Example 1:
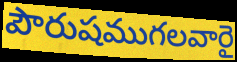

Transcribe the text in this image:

పౌరుషముగలవారై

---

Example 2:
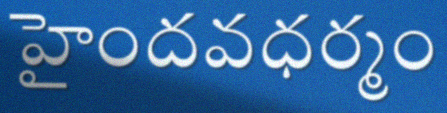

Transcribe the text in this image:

హైందవధర్మం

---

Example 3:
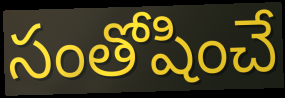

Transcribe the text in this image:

సంతోషించే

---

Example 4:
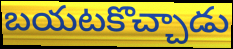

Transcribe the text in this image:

బయటకొచ్చాడు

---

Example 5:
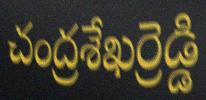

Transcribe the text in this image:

చంద్రశేఖర్రెడ్డి